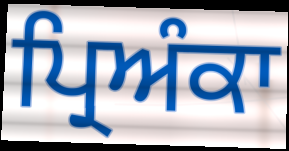
ਪ੍ਰਿਅੰਕਾ